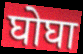
घोघा